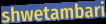
shwetambari